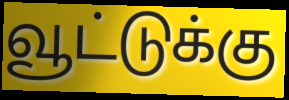
வூட்டுக்கு